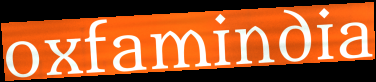
oxfamindia